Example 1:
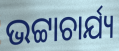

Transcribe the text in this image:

ଭଟ୍ଟାଚାର୍ଯ୍ୟ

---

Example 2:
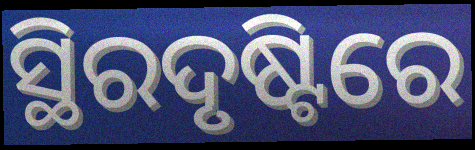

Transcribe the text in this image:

ସ୍ଥିରଦୃଷ୍ଟିରେ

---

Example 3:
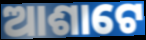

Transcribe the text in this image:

ଆଶାଟେ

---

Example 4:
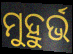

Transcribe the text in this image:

ମୁହୁର୍ଭ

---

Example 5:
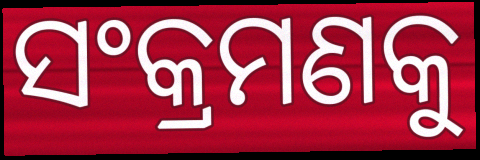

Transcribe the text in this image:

ସଂକ୍ରମଣକୁ